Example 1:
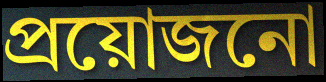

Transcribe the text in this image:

প্ৰয়োজনো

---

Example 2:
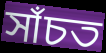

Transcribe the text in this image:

সাঁচত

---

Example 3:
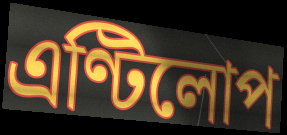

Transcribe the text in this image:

এণ্টিলোপ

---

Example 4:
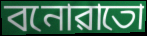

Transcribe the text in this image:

বনোৱাতো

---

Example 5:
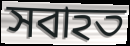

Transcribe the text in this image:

সবাহত